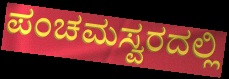
ಪಂಚಮಸ್ವರದಲ್ಲಿ